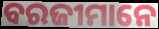
ବରଜୀମାନେ